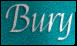
Bury